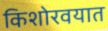
किशोरवयात